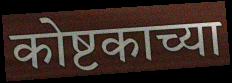
कोष्टकाच्या